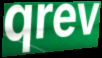
qrev